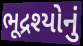
ભૂદ્રશ્યોનું